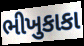
ભીખુકાકા